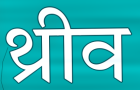
थ्रीव